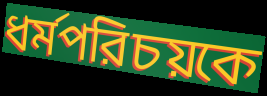
ধর্মপরিচয়কে